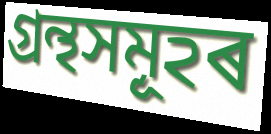
গ্ৰন্থসমূহৰ